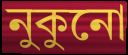
নুকুনো